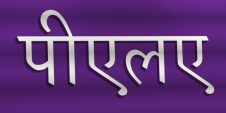
पीएलए